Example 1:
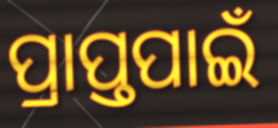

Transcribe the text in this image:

ପ୍ରାପ୍ତପାଇଁ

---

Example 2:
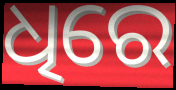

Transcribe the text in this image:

ଧିରେ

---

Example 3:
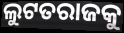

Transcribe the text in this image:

ଲୁଟତରାଜକୁ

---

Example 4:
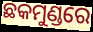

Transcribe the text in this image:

ଛକମୁଣ୍ଡରେ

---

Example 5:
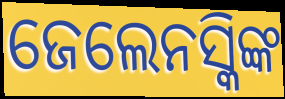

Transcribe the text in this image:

ଜେଲେନସ୍କିଙ୍କ